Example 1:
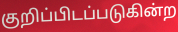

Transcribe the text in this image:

குறிப்பிடப்படுகின்ற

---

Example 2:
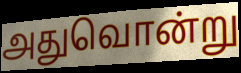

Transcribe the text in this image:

அதுவொன்று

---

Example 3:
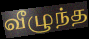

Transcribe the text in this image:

வீழுந்த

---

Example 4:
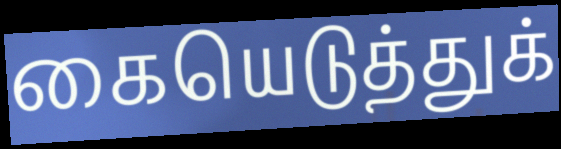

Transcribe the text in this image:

கையெடுத்துக்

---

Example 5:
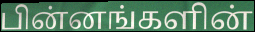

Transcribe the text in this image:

பின்னங்களின்